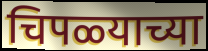
चिपळ्याच्या